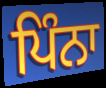
ਪਿੰਨਾ